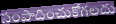
సంపాదించుకోగలదు